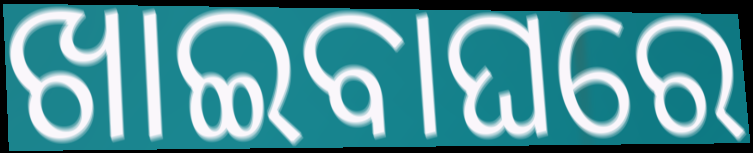
ଖାଇବାଘରେ